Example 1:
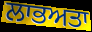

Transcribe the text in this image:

ਲਾਭਅਤਾ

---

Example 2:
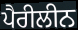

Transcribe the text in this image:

ਪੈਰੀਲੀਨ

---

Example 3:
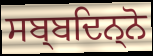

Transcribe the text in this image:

ਸਬ੍ਬਦਿਨ੍ਨੋ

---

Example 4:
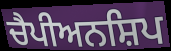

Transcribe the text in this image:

ਚੈਪੀਅਨਸ਼ਿਪ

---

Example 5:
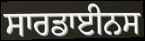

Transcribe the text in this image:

ਸਾਰਡਾਈਨਸ